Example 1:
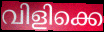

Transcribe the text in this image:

വിളിക്കെ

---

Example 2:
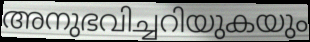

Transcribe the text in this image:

അനുഭവിച്ചറിയുകയും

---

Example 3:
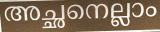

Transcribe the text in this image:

അച്ഛനെല്ലാം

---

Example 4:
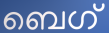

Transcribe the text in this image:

ബെഗ്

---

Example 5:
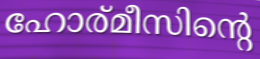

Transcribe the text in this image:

ഹോര്മീസിന്റെ